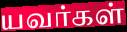
யவர்கள்